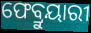
ଫେବ୍ରୁୟାରୀ